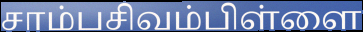
சாம்பசிவம்பிள்ளை